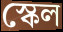
স্কেল